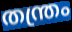
തന്ത്രം